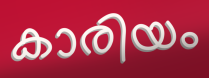
കാരിയം